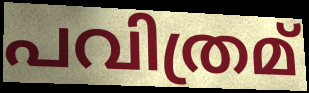
പവിത്രമ്